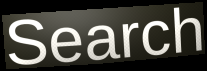
Search